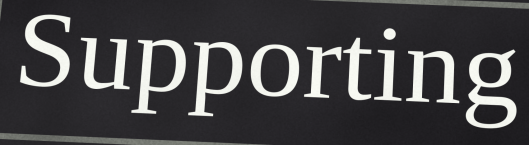
Supporting